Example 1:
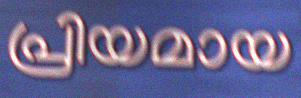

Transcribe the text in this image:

പ്രിയമായ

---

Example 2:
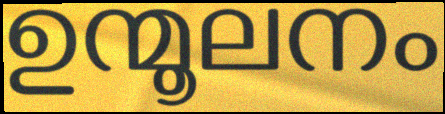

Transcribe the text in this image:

ഉന്മൂലനം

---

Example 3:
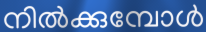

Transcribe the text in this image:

നിൽക്കുമ്പോൾ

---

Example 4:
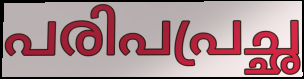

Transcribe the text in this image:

പരിപപ്രച്ഛ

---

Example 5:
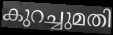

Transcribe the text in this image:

കുറച്ചുമതി